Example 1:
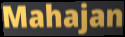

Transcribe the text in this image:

Mahajan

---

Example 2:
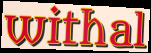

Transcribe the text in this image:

withal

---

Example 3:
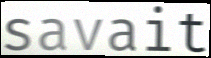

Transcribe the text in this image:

savait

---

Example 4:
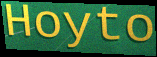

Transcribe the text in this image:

Hoyto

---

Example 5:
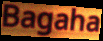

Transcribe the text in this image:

Bagaha